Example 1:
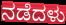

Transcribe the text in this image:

ನಡೆದಳು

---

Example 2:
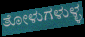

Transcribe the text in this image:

ತೋಳುಗಳುಳ್ಳ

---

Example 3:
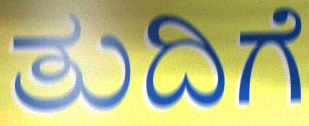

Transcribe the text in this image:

ತುದಿಗೆ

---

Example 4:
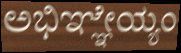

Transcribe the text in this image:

ಅಭಿಞ್ಞೇಯ್ಯಂ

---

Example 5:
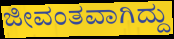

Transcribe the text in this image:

ಜೀವಂತವಾಗಿದ್ದು